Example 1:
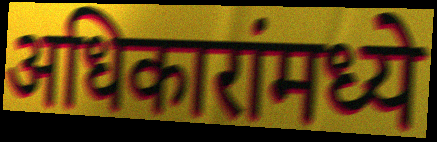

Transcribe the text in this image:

अधिकारांमध्ये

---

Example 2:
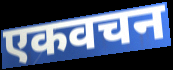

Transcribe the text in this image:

एकवचन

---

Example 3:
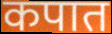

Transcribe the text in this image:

कपात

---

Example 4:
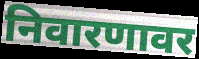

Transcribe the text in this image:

निवारणावर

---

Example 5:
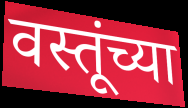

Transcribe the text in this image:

वस्तूंच्या